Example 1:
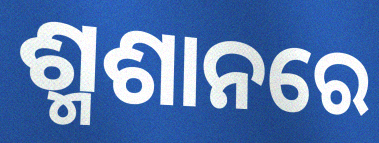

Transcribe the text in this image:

ଶ୍ମଶାନରେ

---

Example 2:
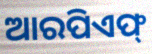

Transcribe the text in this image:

ଆରପିଏଫ୍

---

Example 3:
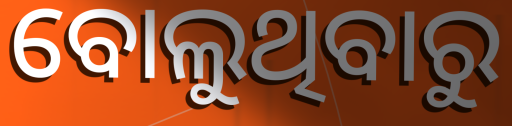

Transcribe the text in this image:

ବୋଲୁଥିବାରୁ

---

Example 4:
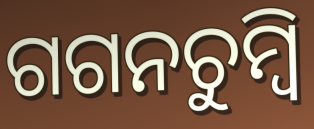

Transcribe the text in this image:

ଗଗନଚୁମ୍ବି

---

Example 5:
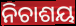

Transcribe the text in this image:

ନିଚାଶୟ